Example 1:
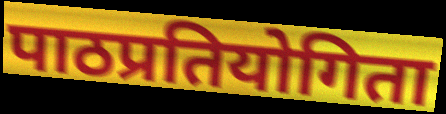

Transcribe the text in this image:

पाठप्रतियोगिता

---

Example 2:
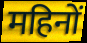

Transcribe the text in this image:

महिनों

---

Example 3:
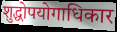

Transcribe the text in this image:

शुद्धोपयोगाधिकार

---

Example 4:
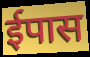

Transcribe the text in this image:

ईपास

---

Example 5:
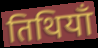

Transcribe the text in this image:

तिथियाँ